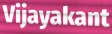
Vijayakant